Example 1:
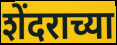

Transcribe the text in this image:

शेंदराच्या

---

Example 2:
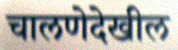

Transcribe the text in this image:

चालणेदेखील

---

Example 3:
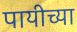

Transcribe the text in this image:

पायीच्या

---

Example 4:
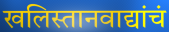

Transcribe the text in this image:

खलिस्तानवाद्यांचं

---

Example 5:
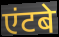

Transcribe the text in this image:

एंटबे